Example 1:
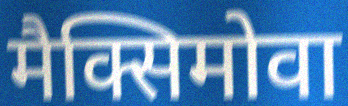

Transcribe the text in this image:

मैक्सिमोवा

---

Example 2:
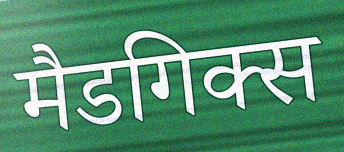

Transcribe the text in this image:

मैडगिक्स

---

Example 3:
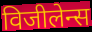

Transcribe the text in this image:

विजीलेन्स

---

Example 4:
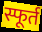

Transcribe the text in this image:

स्फूर्त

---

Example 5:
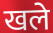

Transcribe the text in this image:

खले